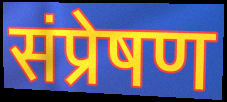
संप्रेषण